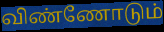
விண்ணோடும்